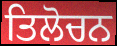
ਤਿਲੋਚਨ